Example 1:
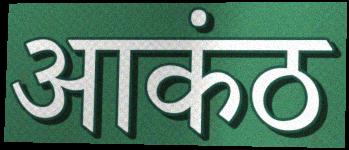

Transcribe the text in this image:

आकंठ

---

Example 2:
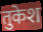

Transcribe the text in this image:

तुकेश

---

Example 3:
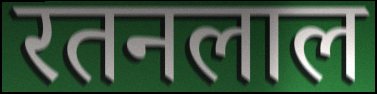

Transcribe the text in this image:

रतनलाल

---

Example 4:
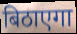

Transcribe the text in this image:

बिठाएगा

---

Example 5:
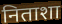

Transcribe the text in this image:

निताशा